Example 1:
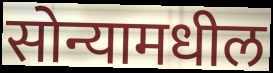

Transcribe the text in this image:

सोन्यामधील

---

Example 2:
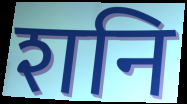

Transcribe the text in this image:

शनि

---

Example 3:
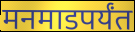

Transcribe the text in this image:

मनमाडपर्यंत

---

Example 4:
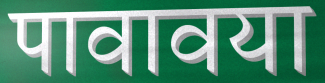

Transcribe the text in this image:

पावावया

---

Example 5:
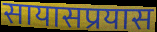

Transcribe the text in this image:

सायासप्रयास